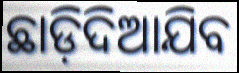
ଛାଡ଼ିଦିଆଯିବ